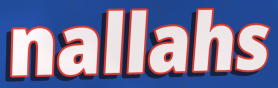
nallahs